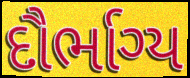
દૌર્ભાગ્ય